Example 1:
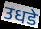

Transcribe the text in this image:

उधडे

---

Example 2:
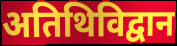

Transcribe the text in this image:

अतिथिविद्वान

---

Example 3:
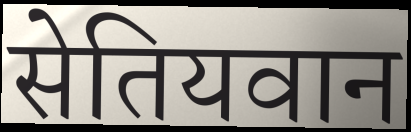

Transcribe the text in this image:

सेतियवान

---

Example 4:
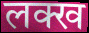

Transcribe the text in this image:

लक्ख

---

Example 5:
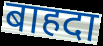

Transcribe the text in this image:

बाहदा